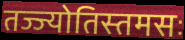
तज्ज्योतिस्तमसः